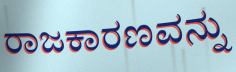
ರಾಜಕಾರಣವನ್ನು